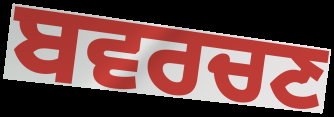
ਬਵਰਚਣ